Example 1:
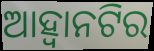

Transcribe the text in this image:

ଆହ୍ଵାନଟିର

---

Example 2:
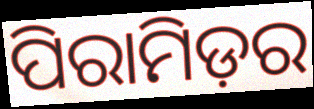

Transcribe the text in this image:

ପିରାମିଡ଼ର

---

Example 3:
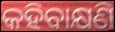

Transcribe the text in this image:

କହିବାକ୍ଷଣି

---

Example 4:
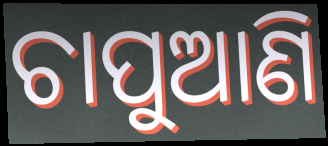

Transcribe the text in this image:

ଚାପୁଆଣି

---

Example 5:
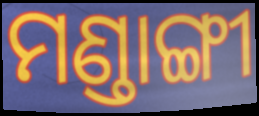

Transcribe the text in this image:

ମଣ୍ଡାଙ୍ଗୀ